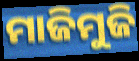
ମାଜିମୁଜି